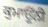
ਕੁਮਾਊਂਨੀ